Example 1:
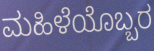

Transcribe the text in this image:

ಮಹಿಳೆಯೊಬ್ಬರ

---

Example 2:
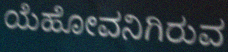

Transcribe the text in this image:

ಯೆಹೋವನಿಗಿರುವ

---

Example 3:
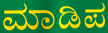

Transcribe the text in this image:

ಮಾಡಿಪ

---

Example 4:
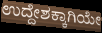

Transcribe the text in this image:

ಉದ್ದೇಶಕ್ಕಾಗಿಯೇ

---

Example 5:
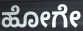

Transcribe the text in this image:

ಹೋಗೇ